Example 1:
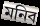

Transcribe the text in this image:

মনিব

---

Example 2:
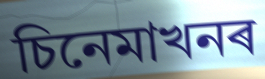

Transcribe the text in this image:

চিনেমাখনৰ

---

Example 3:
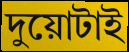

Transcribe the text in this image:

দুয়োটাই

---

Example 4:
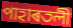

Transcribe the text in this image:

পাহাৰতলী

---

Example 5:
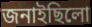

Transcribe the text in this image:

জনাইছিলো